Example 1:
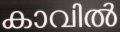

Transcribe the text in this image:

കാവിൽ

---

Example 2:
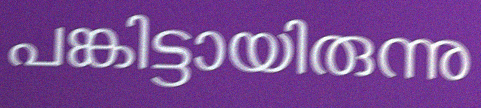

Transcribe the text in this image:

പങ്കിട്ടായിരുന്നു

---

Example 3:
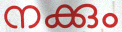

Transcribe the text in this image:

നക്കും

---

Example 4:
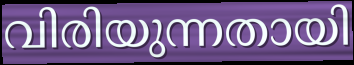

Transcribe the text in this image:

വിരിയുന്നതായി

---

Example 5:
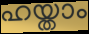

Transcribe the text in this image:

ഹയ്താം